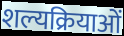
शल्यक्रियाओं